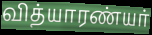
வித்யாரண்யர்